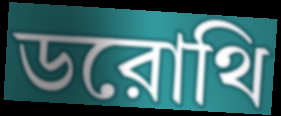
ডরোথি